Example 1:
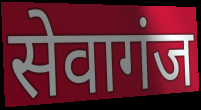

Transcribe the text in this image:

सेवागंज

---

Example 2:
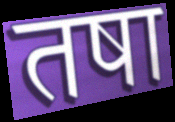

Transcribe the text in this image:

तषा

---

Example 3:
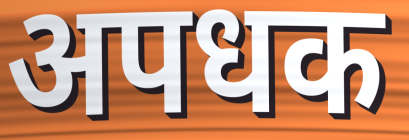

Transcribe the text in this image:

अपधक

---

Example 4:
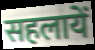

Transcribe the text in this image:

सहलायें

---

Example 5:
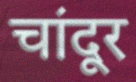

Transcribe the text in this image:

चांदूर